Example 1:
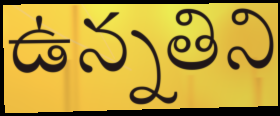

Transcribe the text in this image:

ఉన్నతిని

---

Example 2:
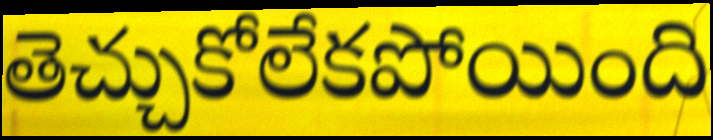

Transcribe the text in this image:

తెచ్చుకోలేకపోయింది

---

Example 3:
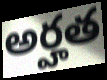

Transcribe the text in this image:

అర్హత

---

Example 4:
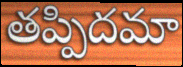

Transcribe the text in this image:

తప్పిదమా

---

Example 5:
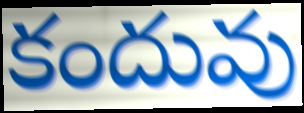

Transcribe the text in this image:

కందువు